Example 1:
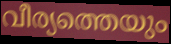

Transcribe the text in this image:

വീര്യത്തെയും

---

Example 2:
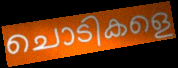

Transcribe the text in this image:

ചൊടികളെ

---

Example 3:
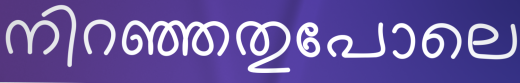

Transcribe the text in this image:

നിറഞ്ഞതുപോലെ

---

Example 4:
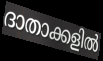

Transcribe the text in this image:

ദാതാക്കളിൽ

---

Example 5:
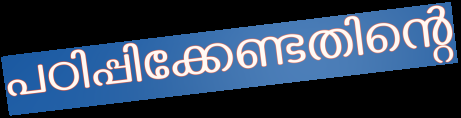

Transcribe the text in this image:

പഠിപ്പിക്കേണ്ടതിന്റെ